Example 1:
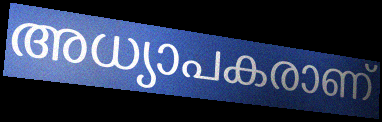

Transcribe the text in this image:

അധ്യാപകരാണ്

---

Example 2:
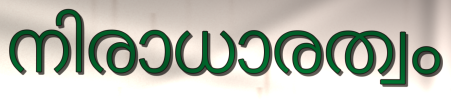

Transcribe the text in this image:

നിരാധാരത്വം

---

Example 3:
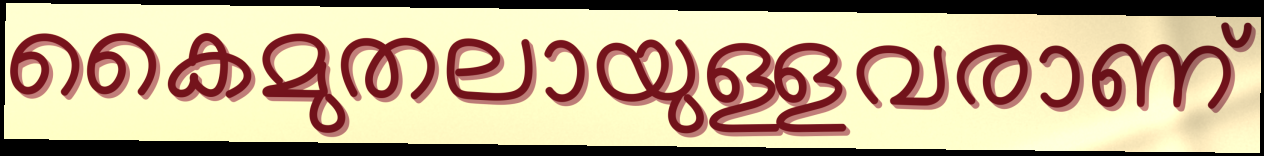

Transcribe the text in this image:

കൈമുതലായുള്ളവരാണ്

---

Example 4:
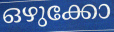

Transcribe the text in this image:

ഒഴുക്കോ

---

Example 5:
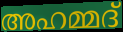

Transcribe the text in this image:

അഹമ്മദ്